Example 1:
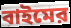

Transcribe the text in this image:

বাইমের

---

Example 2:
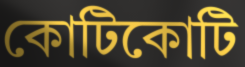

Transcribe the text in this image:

কোটিকোটি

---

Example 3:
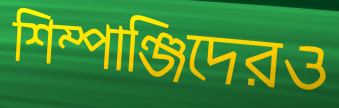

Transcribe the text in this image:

শিম্পাঞ্জিদেরও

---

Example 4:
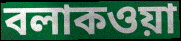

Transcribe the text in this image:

বলাকওয়া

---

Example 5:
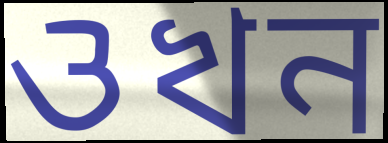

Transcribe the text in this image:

ওখন